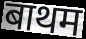
बाथम